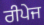
ਰੀਪੇਜ